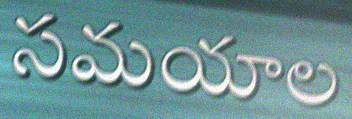
సమయాల